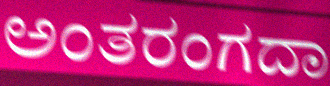
ಅಂತರಂಗದಾ